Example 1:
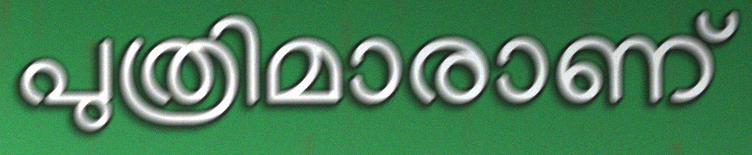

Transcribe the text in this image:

പുത്രിമാരാണ്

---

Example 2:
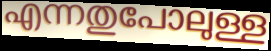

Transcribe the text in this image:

എന്നതുപോലുള്ള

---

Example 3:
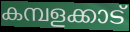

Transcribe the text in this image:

കമ്പളക്കാട്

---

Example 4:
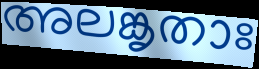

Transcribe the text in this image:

അലങ്കൃതാഃ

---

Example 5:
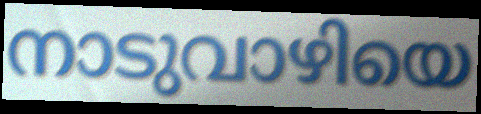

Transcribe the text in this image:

നാടുവാഴിയെ